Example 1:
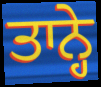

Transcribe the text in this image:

ਤਾਨ੍ਹੇ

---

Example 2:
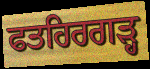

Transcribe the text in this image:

ਫਤਹਿਰਗੜ੍ਹ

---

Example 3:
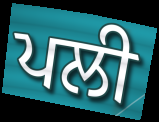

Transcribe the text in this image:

ਪਲੀ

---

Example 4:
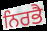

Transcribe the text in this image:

ਨਿਰਭੈ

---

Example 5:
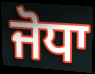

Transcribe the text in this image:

ਜੋਧਾ